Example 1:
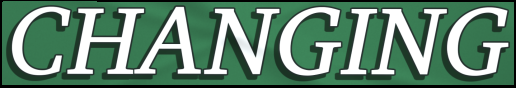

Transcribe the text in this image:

CHANGING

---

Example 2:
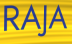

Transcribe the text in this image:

RAJA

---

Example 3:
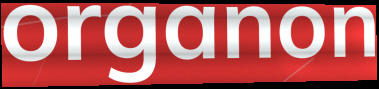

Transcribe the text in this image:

organon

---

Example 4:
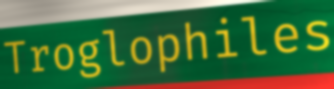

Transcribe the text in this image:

Troglophiles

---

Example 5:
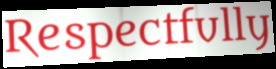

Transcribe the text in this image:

Respectfully